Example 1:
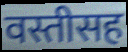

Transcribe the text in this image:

वस्तीसह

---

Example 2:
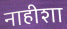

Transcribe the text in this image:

नाहीशा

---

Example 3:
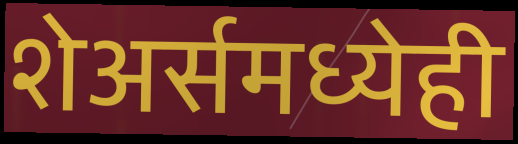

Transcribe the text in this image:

शेअर्समध्येही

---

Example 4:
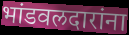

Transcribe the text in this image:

भांडवलदारांना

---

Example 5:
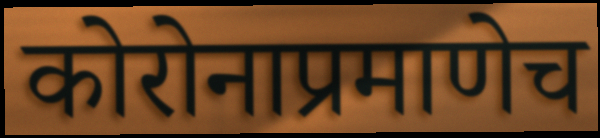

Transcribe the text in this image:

कोरोनाप्रमाणेच